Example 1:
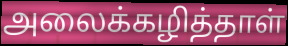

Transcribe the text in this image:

அலைக்கழித்தாள்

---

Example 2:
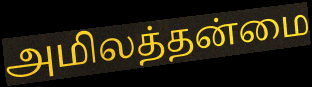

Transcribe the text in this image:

அமிலத்தன்மை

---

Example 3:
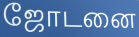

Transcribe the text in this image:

ஜோடனை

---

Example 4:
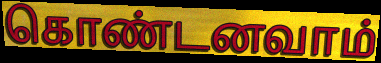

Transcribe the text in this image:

கொண்டனவாம்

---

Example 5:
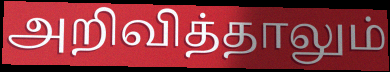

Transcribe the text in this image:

அறிவித்தாலும்